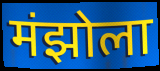
मंझोला